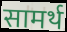
सामर्थ